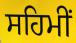
ਸਹਿਮੀਂ